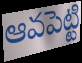
ఆవపెట్టి